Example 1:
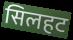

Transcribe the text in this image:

सिलहट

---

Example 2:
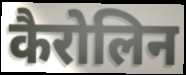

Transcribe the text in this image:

कैरोलिन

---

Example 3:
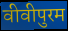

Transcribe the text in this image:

वीवीपुरम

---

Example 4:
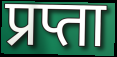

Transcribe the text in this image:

प्रप्ता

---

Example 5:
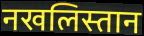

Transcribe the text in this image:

नखलिस्तान